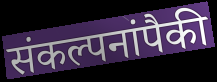
संकल्पनांपैकी